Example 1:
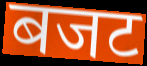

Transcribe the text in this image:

बजट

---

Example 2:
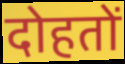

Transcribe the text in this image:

दोहतों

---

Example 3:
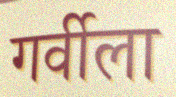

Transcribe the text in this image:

गर्वीला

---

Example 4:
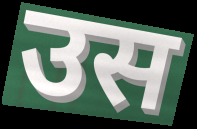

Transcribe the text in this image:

उस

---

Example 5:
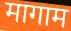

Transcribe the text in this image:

मागाम